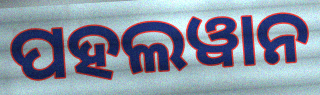
ପହଲୱାନ